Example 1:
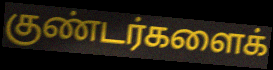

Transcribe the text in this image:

குண்டர்களைக்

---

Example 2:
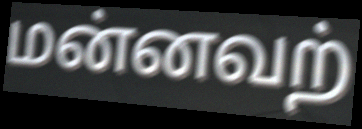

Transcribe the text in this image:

மன்னவற்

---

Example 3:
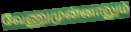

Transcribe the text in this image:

வேணுமுன்னாலும்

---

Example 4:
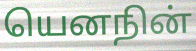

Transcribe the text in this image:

யெனநின்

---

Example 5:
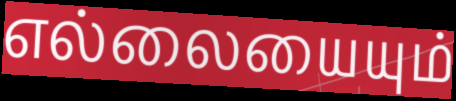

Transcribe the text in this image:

எல்லையையும்